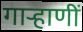
गाऱ्हाणीं